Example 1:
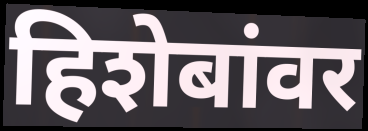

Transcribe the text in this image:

हिशेबांवर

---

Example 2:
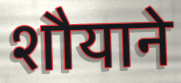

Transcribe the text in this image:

शौयाने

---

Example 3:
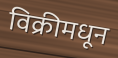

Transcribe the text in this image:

विक्रीमधून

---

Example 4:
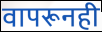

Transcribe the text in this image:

वापरूनही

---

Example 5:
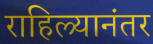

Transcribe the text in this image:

राहिल्यानंतर